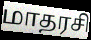
மாதரசி